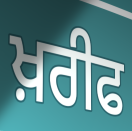
ਖ਼ਰੀਫ